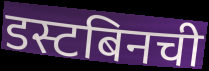
डस्टबिनची